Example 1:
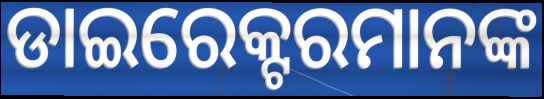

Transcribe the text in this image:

ଡାଇରେକ୍ଟରମାନଙ୍କ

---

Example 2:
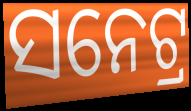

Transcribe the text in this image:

ସନେଟ୍ର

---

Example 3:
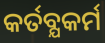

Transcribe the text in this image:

କର୍ତବ୍ଯକର୍ମ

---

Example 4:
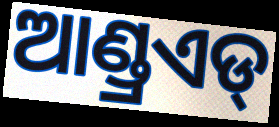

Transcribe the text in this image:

ଆଣ୍ଡ୍ରଏଡ୍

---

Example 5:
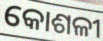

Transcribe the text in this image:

କୋଶଳୀ